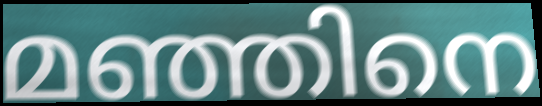
മഞ്ഞിനെ